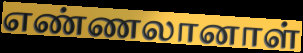
எண்ணலானாள்